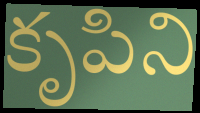
కృపిని